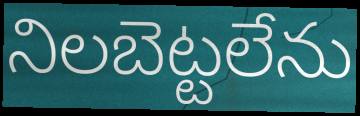
నిలబెట్టలేను